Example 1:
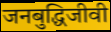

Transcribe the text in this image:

जनबुद्धिजीवी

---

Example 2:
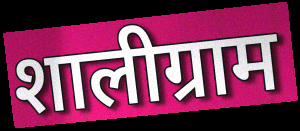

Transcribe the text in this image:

शालीग्राम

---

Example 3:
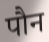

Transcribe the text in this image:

पौन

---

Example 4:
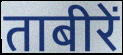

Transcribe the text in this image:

ताबीरें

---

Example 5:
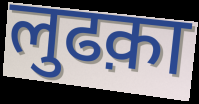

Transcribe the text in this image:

लुढक़ा